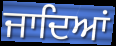
ਜਾਦਿਆਂ